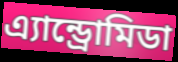
এ্যান্ড্রোমিডা